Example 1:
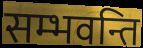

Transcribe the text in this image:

सम्भवन्ति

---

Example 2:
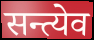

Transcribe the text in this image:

सन्त्येव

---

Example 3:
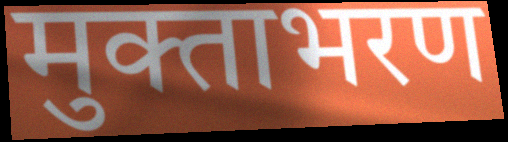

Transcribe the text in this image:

मुक्ताभरण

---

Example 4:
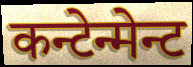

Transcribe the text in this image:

कन्टेन्मेन्ट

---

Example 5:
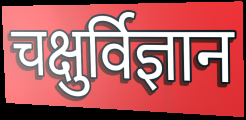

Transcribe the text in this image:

चक्षुर्विज्ञान